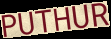
PUTHUR